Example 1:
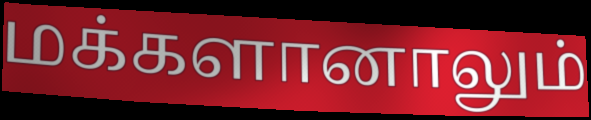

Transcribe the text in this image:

மக்களானாலும்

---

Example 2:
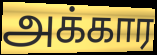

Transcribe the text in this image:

அக்கார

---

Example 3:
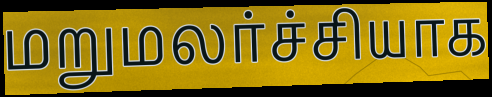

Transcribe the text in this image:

மறுமலர்ச்சியாக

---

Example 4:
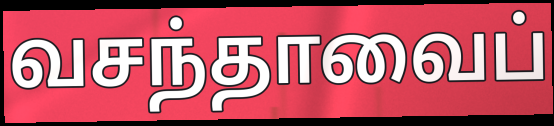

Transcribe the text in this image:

வசந்தாவைப்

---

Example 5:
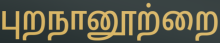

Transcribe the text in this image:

புறநானூற்றை